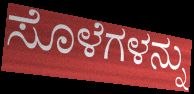
ಸೊಳೆಗಳನ್ನು